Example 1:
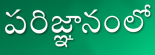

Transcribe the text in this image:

పరిజ్ఞానంలో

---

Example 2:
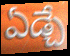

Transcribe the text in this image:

ఏడ్చే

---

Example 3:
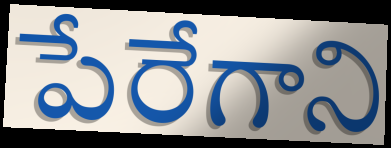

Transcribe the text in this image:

పేరేగాని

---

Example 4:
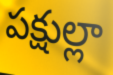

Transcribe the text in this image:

పక్షుల్లా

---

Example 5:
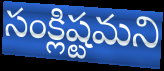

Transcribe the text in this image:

సంక్లిష్టమని